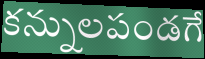
కన్నులపండగే